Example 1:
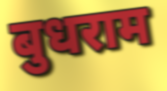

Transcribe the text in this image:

बुधराम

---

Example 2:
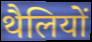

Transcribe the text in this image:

थैलियों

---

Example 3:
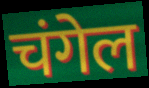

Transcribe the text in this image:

चंगेल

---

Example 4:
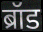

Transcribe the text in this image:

ब्रॉड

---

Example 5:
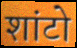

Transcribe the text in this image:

शांटो